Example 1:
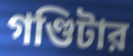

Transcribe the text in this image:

গণ্ডিটার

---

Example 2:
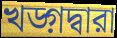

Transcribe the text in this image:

খড়্গদ্বারা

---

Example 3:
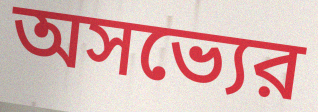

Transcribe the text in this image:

অসভ্যের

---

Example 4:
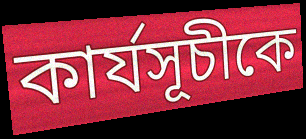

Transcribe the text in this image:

কার্যসূচীকে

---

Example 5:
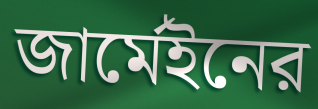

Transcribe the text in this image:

জার্মেইনের